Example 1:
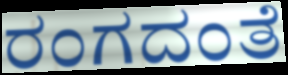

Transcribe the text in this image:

ರಂಗದಂತೆ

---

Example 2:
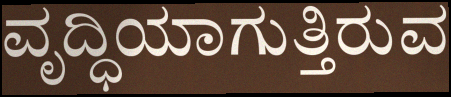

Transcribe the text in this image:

ವೃದ್ಧಿಯಾಗುತ್ತಿರುವ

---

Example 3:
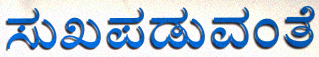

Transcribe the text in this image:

ಸುಖಪಡುವಂತೆ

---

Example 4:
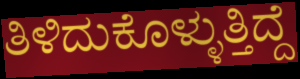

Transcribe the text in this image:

ತಿಳಿದುಕೊಳ್ಳುತ್ತಿದ್ದೆ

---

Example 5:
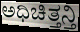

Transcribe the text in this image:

ಅಧಿಚಿತ್ತನ್ತಿ